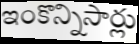
ఇంకొన్నిసార్లు